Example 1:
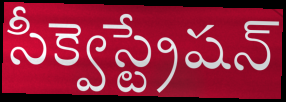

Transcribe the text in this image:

సీక్వెస్ట్రేషన్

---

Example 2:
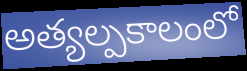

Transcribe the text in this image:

అత్యల్పకాలంలో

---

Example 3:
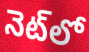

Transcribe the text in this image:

నెట్‌లో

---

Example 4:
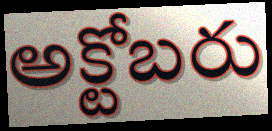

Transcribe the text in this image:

అక్టోబరు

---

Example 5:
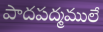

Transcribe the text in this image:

పాదపద్మములే